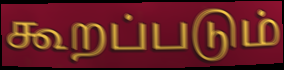
கூறப்படும்